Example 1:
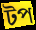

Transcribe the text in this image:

টপ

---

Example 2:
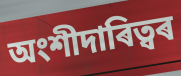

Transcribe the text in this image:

অংশীদাৰিত্বৰ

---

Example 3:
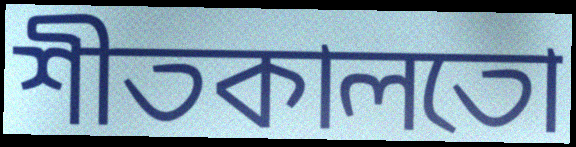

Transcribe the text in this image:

শীতকালতো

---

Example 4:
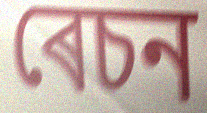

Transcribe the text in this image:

ৰেচন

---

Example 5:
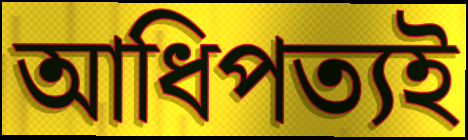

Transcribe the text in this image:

আধিপত্যই